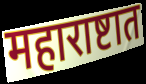
महाराष्टात